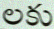
లకు